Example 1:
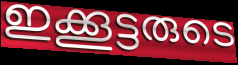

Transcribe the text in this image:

ഇക്കൂട്ടരുടെ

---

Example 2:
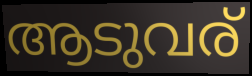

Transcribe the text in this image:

ആടുവര്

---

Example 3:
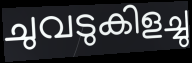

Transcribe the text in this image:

ചുവടുകിളച്ചു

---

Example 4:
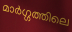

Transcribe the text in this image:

മാർഗ്ഗത്തിലെ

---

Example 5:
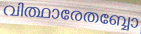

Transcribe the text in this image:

വിത്ഥാരേതബ്ബോ